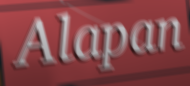
Alapan